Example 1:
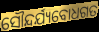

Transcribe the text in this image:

ସୌନ୍ଦର୍ଯ୍ୟବୋଧଗତ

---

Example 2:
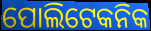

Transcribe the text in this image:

ପୋଲିଟେକନିକ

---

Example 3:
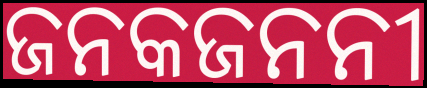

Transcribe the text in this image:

ଜନକଜନନୀ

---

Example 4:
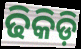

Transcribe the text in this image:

ଢିକିଡ଼ି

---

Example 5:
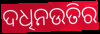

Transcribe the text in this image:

ଦଧିନଉତିର